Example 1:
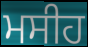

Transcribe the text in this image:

ਮਸੀਹ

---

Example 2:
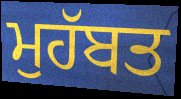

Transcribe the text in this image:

ਮੁਹੱਬਤ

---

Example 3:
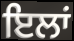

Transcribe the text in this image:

ਇਲਾਂ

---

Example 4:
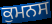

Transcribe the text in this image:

ਕੁਮਨਸ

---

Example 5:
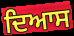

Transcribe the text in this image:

ਦਿਆਸ